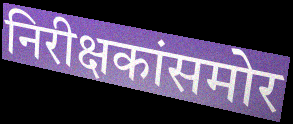
निरीक्षकांसमोर